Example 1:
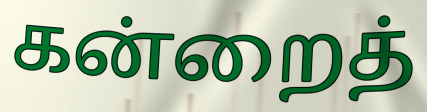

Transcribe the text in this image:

கன்றைத்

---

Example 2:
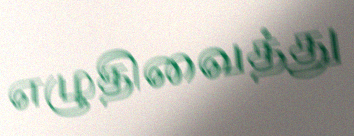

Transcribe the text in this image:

எழுதிவைத்து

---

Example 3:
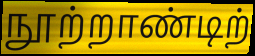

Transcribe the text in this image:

நூற்றாண்டிற்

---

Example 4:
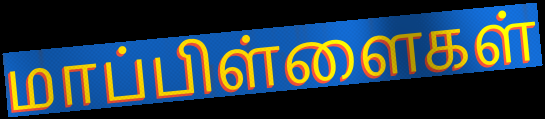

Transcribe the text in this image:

மாப்பிள்ளைகள்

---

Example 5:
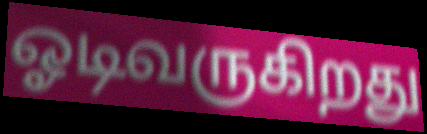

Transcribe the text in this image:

ஓடிவருகிறது